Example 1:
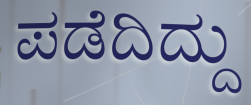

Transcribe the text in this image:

ಪಡೆದಿದ್ದು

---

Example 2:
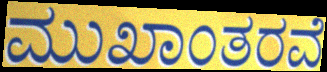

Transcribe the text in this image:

ಮುಖಾಂತರವೆ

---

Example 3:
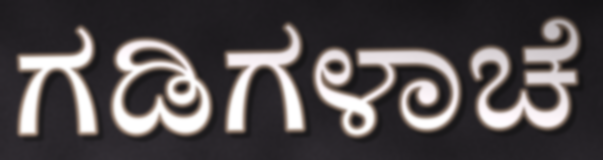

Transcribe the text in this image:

ಗಡಿಗಳಾಚೆ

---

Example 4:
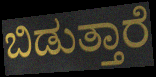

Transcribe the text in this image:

ಬಿಡುತ್ತಾರೆ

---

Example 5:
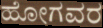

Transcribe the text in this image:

ಹೋಗವರ